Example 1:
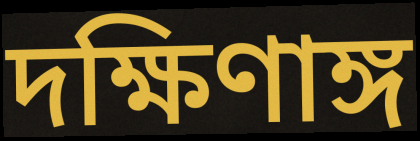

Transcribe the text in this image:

দক্ষিণাঙ্গ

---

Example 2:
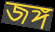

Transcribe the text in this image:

জঙ্গ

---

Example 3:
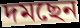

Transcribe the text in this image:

দমছেন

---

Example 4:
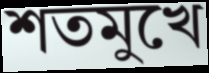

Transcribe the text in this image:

শতমুখে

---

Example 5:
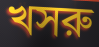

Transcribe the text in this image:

খসরু